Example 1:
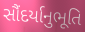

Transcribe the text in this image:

સૌંદર્યાનુભૂતિ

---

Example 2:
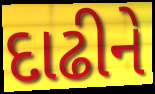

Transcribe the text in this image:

દાઢીને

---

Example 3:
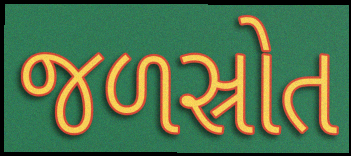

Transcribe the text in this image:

જળસ્રોત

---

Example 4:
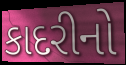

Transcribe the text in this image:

કાદરીનો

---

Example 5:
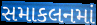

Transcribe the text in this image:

સમાકલનમાં